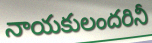
నాయకులందరినీ